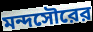
মন্দসৌরের